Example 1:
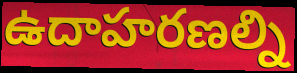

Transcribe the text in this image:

ఉదాహరణల్ని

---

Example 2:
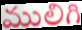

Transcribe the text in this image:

ములిగి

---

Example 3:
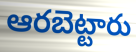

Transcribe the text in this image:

ఆరబెట్టారు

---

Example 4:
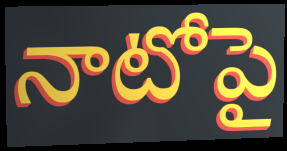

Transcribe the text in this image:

నాటోపై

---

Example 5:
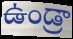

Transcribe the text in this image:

ఉండ్రా